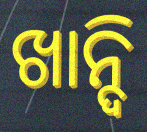
ଖାନ୍ଦି